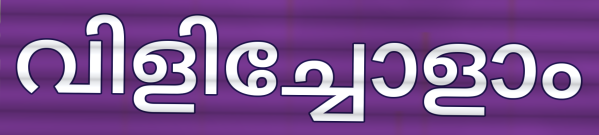
വിളിച്ചോളാം